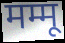
मम्मू